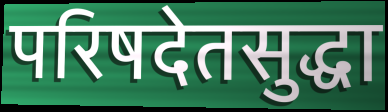
परिषदेतसुद्धा